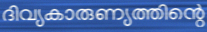
ദിവ്യകാരുണ്യത്തിന്റെ